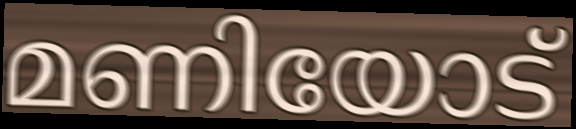
മണിയോട്